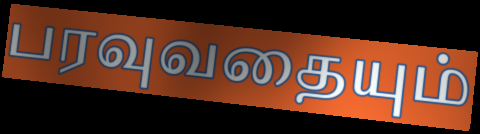
பரவுவதையும்